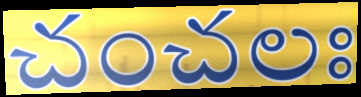
చంచలః